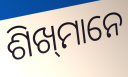
ଶିଖ୍‌ମାନେ